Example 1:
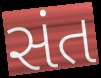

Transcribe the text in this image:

સંત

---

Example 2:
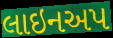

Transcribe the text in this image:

લાઇનઅપ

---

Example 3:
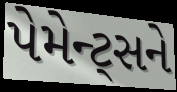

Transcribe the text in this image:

પેમેન્ટ્સને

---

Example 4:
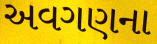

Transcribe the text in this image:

અવગણના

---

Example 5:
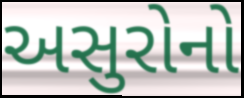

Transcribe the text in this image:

અસુરોનો